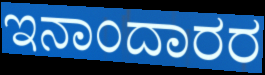
ಇನಾಂದಾರರ